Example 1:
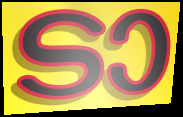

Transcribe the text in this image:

ടാ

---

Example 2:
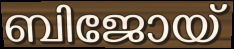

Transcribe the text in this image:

ബിജോയ്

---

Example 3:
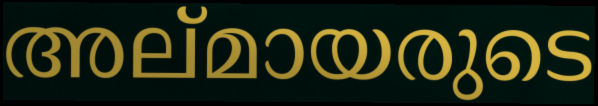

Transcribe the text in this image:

അല്മായരുടെ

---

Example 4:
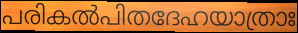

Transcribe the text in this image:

പരികൽപിതദേഹയാത്രാഃ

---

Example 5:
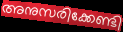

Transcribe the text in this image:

അനുസരിക്കേണ്ടി